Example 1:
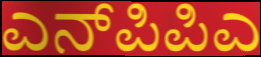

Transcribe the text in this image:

ಎನ್‌ಪಿಪಿಎ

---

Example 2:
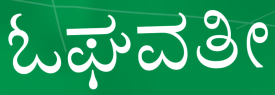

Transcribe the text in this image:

ಓಘವತೀ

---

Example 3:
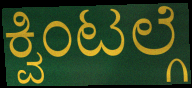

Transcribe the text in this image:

ಕ್ವಿಂಟಲ್ಗೆ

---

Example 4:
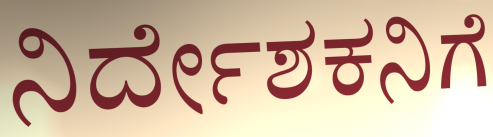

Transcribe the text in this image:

ನಿರ್ದೇಶಕನಿಗೆ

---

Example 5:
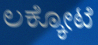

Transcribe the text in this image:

ಲಕ್ಕೋಟೆ